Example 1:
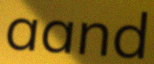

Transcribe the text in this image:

aand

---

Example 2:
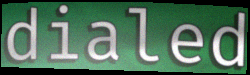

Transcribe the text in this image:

dialed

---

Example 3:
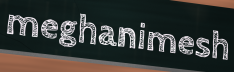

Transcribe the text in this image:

meghanimesh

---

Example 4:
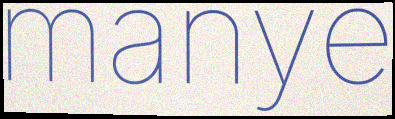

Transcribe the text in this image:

manye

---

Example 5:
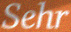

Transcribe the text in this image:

Sehr